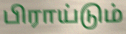
பிராய்டும்